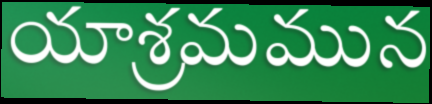
యాశ్రమమున